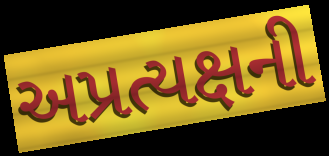
અપ્રત્યક્ષની